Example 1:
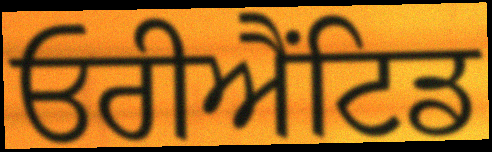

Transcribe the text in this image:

ਓਰੀਐਂਟਿਡ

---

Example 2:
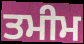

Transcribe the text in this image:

ਤਮੀਮ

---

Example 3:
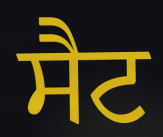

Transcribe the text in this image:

ਸੈਟ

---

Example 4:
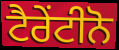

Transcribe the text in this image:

ਟੈਰੇਂਟੀਨੋ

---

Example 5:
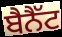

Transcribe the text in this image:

ਬੈਨੈੱਟ